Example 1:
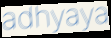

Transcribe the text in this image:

adhyaya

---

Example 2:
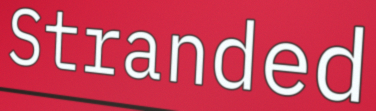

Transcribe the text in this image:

Stranded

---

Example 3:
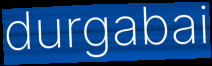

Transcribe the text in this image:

durgabai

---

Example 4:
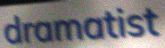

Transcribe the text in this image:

dramatist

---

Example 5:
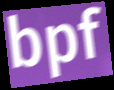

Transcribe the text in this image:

bpf